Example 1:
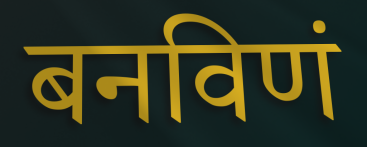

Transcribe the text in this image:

बनविणं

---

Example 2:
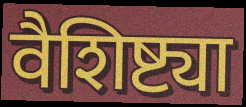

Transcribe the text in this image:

वैशिष्ट्या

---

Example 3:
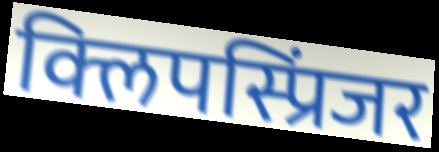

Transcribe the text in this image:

क्लिपस्प्रिंजर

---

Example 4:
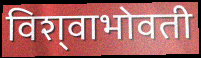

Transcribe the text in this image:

विश्वाभोवती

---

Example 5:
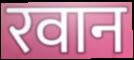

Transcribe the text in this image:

रवान